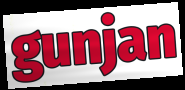
gunjan